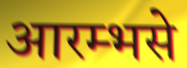
आरम्भसे